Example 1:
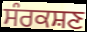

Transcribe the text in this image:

ਸੰਰਕਸ਼ਣ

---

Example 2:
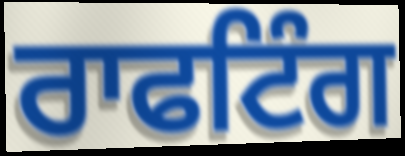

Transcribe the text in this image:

ਰਾਫਟਿੰਗ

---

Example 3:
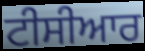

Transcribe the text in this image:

ਟੀਸੀਆਰ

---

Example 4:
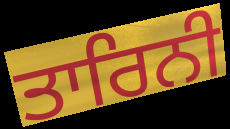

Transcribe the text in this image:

ਤਾਰਿਨੀ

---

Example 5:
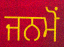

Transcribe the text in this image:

ਜਨਮੋਂ